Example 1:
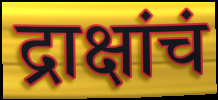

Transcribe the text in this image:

द्राक्षांचं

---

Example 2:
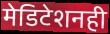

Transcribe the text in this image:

मेडिटेशनही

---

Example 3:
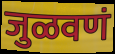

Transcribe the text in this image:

जुळवणं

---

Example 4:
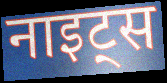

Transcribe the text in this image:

नाइट्‌स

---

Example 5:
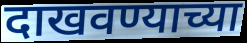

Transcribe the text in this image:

दाखवण्याच्या